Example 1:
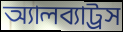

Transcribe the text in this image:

অ্যালব্যাট্রস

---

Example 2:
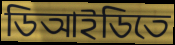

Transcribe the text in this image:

ডিআইডিতে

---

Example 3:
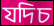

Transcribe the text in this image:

যদিচ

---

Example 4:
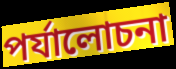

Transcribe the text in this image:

পর্যালোচনা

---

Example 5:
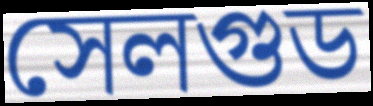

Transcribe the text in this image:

সেলগুড